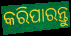
କରିପାରନ୍ତୁ